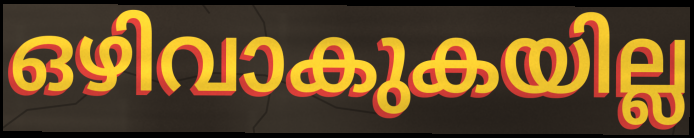
ഒഴിവാകുകയില്ല